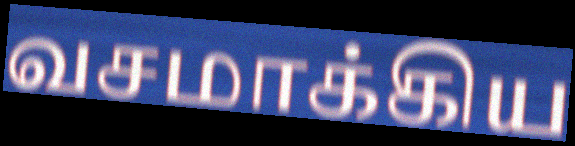
வசமாக்கிய